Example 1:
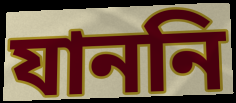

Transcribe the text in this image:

যাননি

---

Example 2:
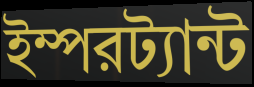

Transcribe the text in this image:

ইম্পরট্যান্ট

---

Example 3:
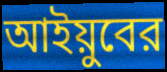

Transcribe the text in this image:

আইয়ুবের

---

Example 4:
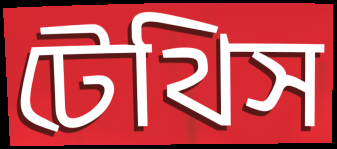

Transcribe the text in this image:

টেথিস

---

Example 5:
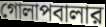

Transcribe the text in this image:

গোলাপবালার